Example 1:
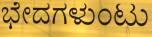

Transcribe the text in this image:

ಭೇದಗಳುಂಟು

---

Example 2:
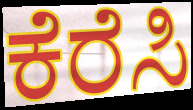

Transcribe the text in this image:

ಕೆರೆಸಿ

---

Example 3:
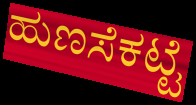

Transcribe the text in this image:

ಹುಣಸೆಕಟ್ಟೆ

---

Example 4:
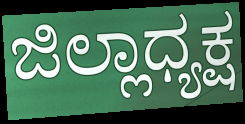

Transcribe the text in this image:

ಜಿಲ್ಲಾಧ್ಯಕ್ಷ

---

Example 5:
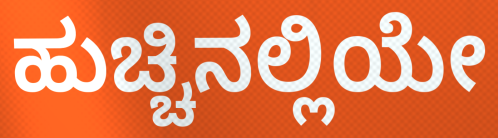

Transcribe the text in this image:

ಹುಚ್ಚಿನಲ್ಲಿಯೇ